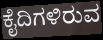
ಕೈದಿಗಳಿರುವ